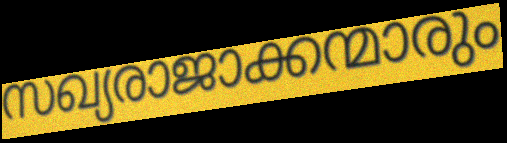
സഖ്യരാജാക്കന്മാരും